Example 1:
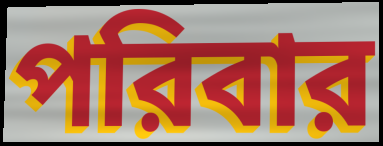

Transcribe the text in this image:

পরিবার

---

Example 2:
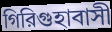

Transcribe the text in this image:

গিরিগুহাবাসী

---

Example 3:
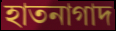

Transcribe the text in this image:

হাতনাগাদ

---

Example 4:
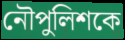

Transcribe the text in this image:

নৌপুলিশকে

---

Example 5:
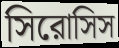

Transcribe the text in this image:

সিরোসিস